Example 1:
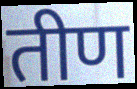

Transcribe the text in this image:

तीण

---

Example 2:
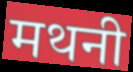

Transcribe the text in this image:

मथनी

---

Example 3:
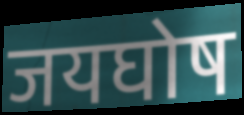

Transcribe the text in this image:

जयघोष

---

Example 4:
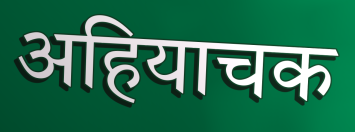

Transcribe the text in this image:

अहियाचक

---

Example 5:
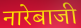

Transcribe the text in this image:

नारेबाजी